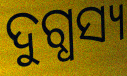
ଦୁଗ୍ଧସ୍ୟ